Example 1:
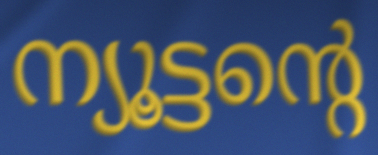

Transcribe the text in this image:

ന്യൂട്ടന്റെ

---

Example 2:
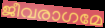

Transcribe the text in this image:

ജീവരാഗമേ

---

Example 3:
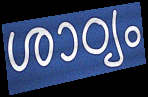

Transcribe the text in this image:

ശാഠ്യം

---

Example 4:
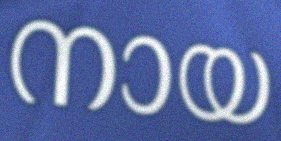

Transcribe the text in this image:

നായ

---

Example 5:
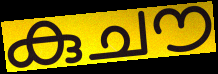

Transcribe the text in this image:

കുചൗ